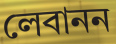
লেবানন